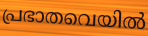
പ്രഭാതവെയിൽ